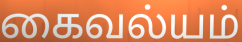
கைவல்யம்